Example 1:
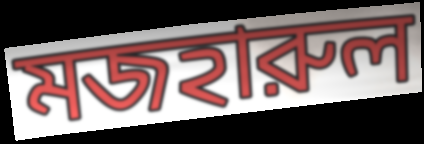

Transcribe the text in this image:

মজহাৰুল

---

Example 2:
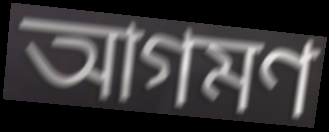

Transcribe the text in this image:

আগমণ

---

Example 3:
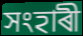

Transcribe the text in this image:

সংহাৰী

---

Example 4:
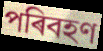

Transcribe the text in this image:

পৰিবহণ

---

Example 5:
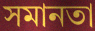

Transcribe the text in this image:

সমানতা